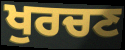
ਖੁਰਚਣ